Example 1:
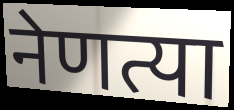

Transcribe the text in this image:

नेणत्या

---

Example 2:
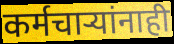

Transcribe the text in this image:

कर्मचाऱ्यांनाही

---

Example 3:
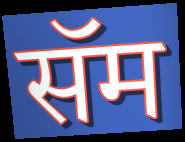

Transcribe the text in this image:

सॅम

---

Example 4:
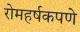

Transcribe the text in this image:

रोमहर्षकपणे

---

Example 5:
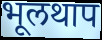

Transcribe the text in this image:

भूलथाप